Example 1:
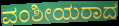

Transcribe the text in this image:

ವಂಶೀಯರಾದ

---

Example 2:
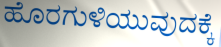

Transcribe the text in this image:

ಹೊರಗುಳಿಯುವುದಕ್ಕೆ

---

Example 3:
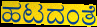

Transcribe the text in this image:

ಹಟದಂತೆ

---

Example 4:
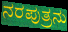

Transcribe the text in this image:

ನರಪುತ್ರನು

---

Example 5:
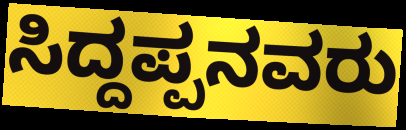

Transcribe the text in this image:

ಸಿದ್ದಪ್ಪನವರು